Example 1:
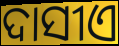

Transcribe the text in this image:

ଦାସୀଏ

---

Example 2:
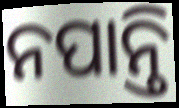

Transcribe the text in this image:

ନପାନ୍ତି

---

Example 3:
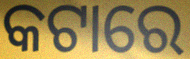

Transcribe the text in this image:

କଟାରେ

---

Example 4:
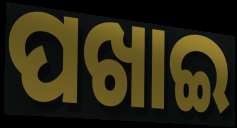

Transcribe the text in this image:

ପଖାଇ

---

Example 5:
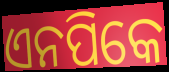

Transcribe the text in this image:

ଏନପିକେ